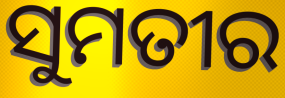
ସୁମତୀର